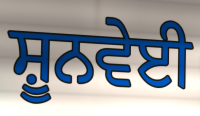
ਸ਼ੂਨਵੇਈ